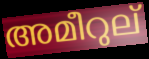
അമീറുല്